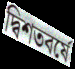
দ্বিশতবর্ষে